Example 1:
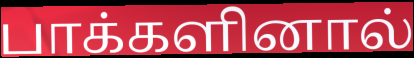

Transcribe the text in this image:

பாக்களினால்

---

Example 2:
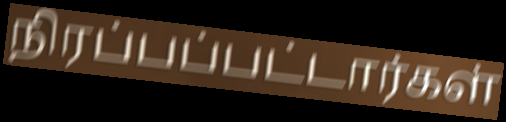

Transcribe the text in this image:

நிரப்பப்பட்டார்கள்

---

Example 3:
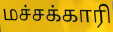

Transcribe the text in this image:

மச்சக்காரி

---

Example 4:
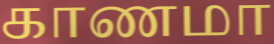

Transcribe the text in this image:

காணமா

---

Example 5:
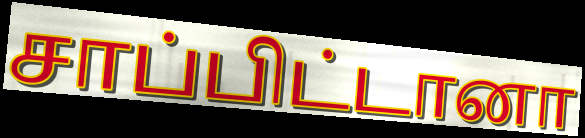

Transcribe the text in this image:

சாப்பிட்டானா